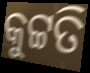
କୁଟ୍ଟତି